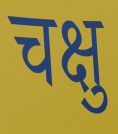
चक्षु